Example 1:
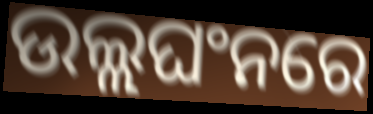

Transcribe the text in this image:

ଉଲ୍ଲଘଂନରେ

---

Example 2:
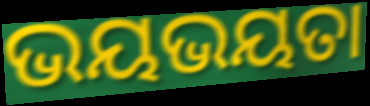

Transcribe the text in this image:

ଭୟଭୟତା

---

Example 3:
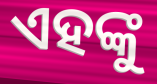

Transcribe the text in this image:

ଏହଙ୍କୁ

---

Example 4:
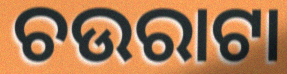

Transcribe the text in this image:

ଚଉରାଟା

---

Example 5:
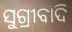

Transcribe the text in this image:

ସୁଗ୍ରୀବାଦି